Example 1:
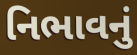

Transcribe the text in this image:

નિભાવનું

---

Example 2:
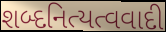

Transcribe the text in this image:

શબ્દનિત્યત્વવાદી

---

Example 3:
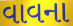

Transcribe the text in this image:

વાવના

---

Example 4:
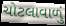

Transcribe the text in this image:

ચોટલાવાળું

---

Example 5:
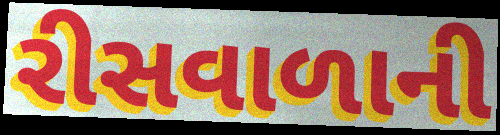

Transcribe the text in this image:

રીસવાળાની